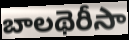
బాలథెరీసా